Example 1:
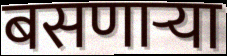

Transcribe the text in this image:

बसणार्‍या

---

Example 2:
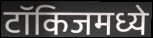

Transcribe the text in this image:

टॉकिजमध्ये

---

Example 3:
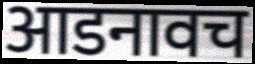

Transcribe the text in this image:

आडनावच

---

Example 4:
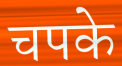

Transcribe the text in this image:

चपके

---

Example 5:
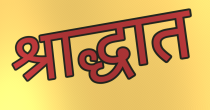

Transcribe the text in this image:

श्राद्धात